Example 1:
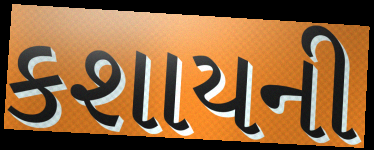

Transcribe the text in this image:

કશાયની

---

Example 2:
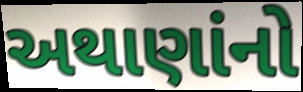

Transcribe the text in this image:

અથાણાંનો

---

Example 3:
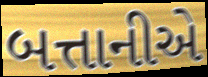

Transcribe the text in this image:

બત્તાનીએ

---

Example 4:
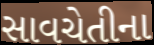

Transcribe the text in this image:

સાવચેતીના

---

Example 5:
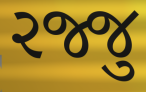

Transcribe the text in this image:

રજ્જુ